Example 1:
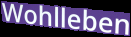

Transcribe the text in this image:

Wohlleben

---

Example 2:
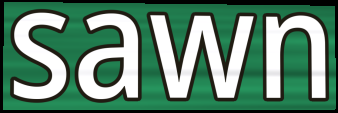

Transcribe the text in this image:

sawn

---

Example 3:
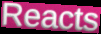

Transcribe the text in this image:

Reacts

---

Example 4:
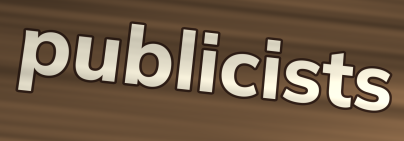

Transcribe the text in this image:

publicists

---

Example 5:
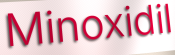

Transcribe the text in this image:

Minoxidil